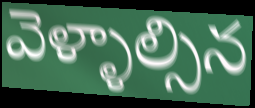
వెళ్ళాల్సిన